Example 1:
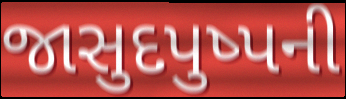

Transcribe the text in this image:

જાસુદપુષ્પની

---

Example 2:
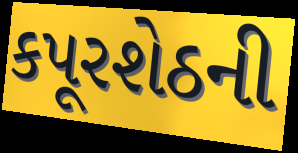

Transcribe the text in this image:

કપૂરશેઠની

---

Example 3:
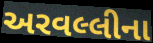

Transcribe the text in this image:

અરવલ્લીના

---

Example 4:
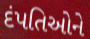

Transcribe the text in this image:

દંપતિઓને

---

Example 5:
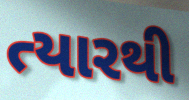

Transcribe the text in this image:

ત્યારથી